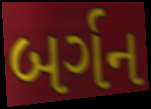
બર્ગન